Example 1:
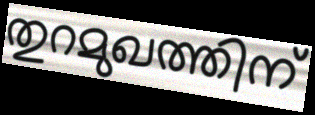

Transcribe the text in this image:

തുറമുഖത്തിന്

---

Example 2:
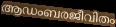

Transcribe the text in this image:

ആഡംബരജീവിതം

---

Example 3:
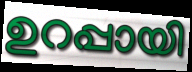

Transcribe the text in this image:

ഉറപ്പായി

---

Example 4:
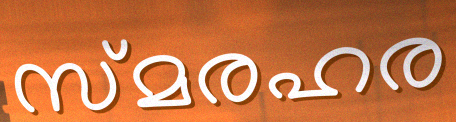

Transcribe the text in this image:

സ്മരഹര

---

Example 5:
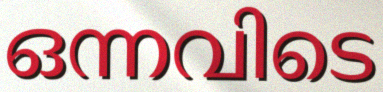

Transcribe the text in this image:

ഒന്നവിടെ